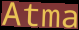
Atma